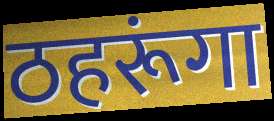
ठहरूंगा